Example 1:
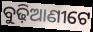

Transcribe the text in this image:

ବୁଢ଼ିଆଣୀଟେ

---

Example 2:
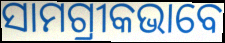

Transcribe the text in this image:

ସାମଗ୍ରୀକଭାବେ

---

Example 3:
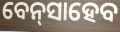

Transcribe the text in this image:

ବେନ୍‌ସାହେବ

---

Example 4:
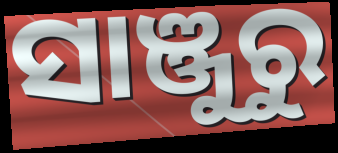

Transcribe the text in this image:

ସାଞ୍ଜୁରୁ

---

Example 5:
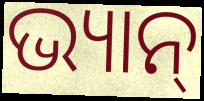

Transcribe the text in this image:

ଭ୍ୟାନ୍